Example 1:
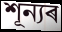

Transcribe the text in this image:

শূন্যৰ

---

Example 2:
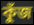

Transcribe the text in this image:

কুঁজ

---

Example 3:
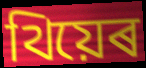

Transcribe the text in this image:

থিয়েৰ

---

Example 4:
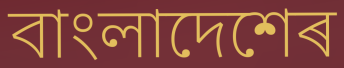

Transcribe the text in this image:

বাংলাদেশেৰ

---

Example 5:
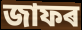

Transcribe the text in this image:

জাফৰ